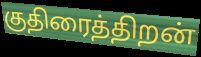
குதிரைத்திறன்